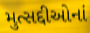
મુત્સદ્દીઓનાં